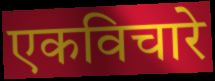
एकविचारे